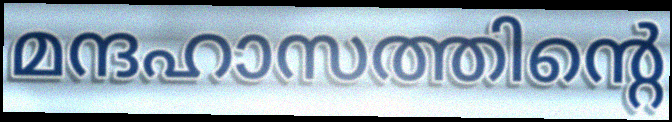
മന്ദഹാസത്തിന്റെ